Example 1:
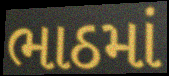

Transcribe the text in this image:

ભાઠમાં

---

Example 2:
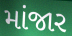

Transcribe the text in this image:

માંજાર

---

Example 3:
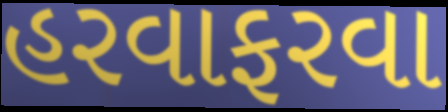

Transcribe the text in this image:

હરવાફરવા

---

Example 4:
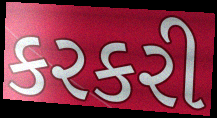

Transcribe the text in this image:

કરકરી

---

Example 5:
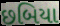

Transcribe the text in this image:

છબિયા